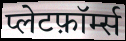
प्लेटफ़ॉर्म्स